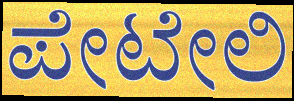
ಪೇಟೇಲಿ